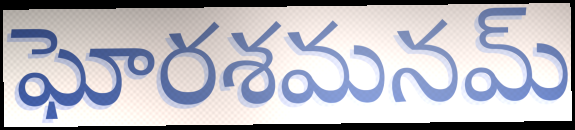
ఘోరశమనమ్